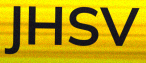
JHSV